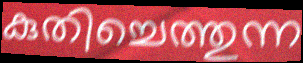
കുതിച്ചെത്തുന്ന